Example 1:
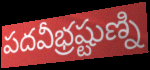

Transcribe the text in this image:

పదవీభ్రష్టుణ్ని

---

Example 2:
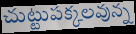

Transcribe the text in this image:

చుట్టుపక్కలవున్న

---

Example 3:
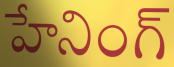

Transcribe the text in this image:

హేనింగ్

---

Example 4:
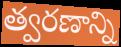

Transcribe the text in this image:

త్వరణాన్ని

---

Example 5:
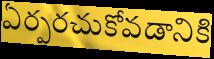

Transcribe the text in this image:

ఏర్పరచుకోవడానికి